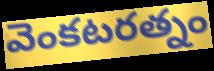
వెంకటరత్నం